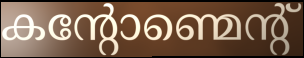
കന്റോണ്മെന്റ്